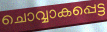
ചൊവ്വാകപ്പെട്ട